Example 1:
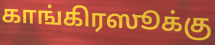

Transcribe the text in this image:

காங்கிரஸூக்கு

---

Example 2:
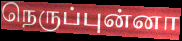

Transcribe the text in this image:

நெருப்புன்னா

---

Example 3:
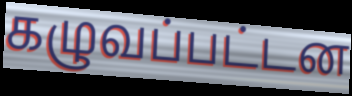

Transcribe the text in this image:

கழுவப்பட்டன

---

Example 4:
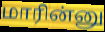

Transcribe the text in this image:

மாரின்னு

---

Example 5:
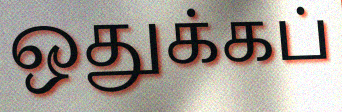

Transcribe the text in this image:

ஒதுக்கப்